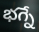
భగ్నే